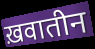
ख़वातीन